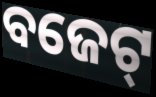
ବଜେଟ୍